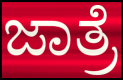
ಜಾತ್ರೆ